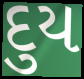
દુય